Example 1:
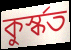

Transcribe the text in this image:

কুৰ্স্কত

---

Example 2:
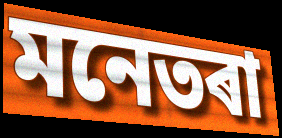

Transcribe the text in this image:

মনেতৰা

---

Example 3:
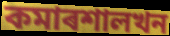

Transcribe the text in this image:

কমাৰশালখন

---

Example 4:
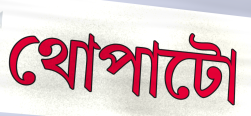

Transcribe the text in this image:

থোপাটো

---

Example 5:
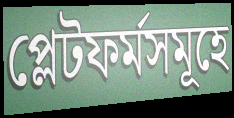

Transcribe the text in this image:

প্লেটফৰ্মসমূহে